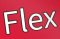
Flex